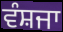
ਵੰਸ਼ਜਾ